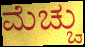
ಮೆಚ್ಚು